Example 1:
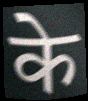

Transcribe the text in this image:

के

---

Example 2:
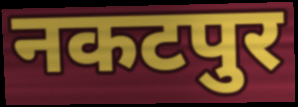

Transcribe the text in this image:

नकटपुर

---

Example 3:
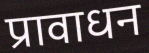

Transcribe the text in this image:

प्रावाधन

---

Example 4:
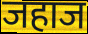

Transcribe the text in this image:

जहाज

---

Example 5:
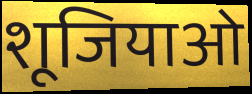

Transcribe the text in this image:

शूजियाओ